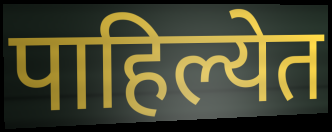
पाहिल्येत